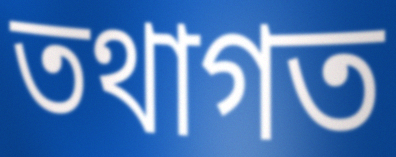
তথাগত